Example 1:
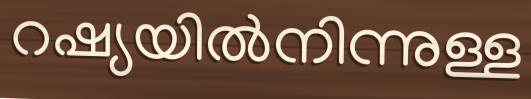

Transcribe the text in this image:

റഷ്യയിൽനിന്നുള്ള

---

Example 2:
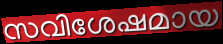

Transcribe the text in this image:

സവിശേഷമായ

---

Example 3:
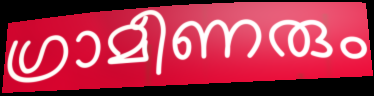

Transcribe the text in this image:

ഗ്രാമീണരും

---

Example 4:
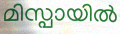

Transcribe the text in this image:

മിസ്പായിൽ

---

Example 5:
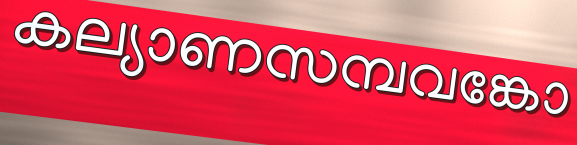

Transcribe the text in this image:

കല്യാണസമ്പവങ്കോ